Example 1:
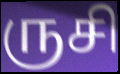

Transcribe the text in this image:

ருசி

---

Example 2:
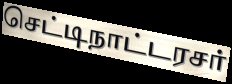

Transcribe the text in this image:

செட்டிநாட்டரசர்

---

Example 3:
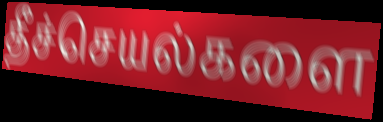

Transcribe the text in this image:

தீச்செயல்களை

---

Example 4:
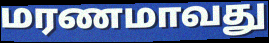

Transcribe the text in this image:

மரணமாவது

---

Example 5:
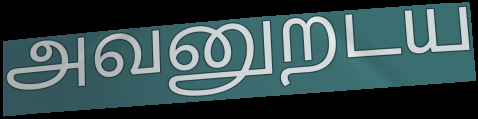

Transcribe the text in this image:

அவனுறடய